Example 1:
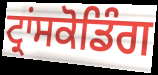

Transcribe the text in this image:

ਟ੍ਰਾਂਸਕੋਡਿੰਗ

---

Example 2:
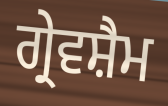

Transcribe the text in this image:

ਗ੍ਰੇਵਸ਼ੈਮ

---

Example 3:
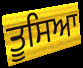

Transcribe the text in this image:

ਤੂਸਿਆ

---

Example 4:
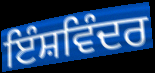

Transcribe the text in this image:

ਇੰਸ਼ਵਿੰਦਰ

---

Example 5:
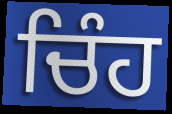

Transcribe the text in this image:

ਚਿੰਹ